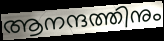
ആനന്ദത്തിനും